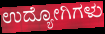
ಉದ್ಯೋಗಿಗಳು